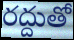
రద్దుతో